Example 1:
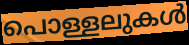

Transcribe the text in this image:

പൊള്ളലുകൾ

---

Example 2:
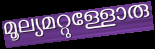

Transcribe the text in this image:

മൂല്യമറ്റുള്ളോരു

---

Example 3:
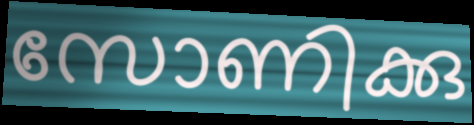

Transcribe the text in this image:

സോണിക്കു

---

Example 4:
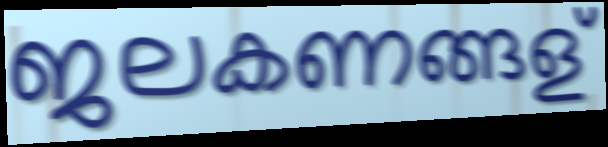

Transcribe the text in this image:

ജലകണങ്ങള്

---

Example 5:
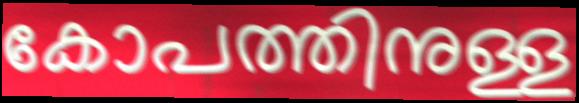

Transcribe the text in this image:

കോപത്തിനുള്ള